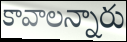
కావాలన్నారు